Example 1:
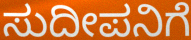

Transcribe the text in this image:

ಸುದೀಪನಿಗೆ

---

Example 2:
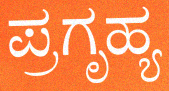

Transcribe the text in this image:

ಪ್ರಗೃಹ್ಯ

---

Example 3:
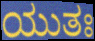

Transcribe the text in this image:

ಯುತಃ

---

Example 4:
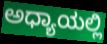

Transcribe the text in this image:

ಅಧ್ಯಾಯಲ್ಲಿ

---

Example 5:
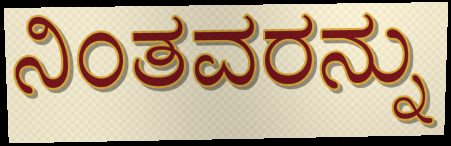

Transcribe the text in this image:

ನಿಂತವರನ್ನು